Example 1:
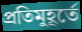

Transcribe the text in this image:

প্রতিমুহূর্তে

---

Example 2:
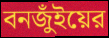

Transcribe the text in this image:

বনজুঁইয়ের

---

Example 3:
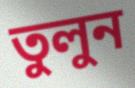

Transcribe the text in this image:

তুলুন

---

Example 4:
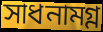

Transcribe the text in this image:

সাধনামগ্ন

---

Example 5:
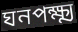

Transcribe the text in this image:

ঘনপক্ষ্ম